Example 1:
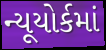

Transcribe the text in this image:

ન્યૂયોર્કમાં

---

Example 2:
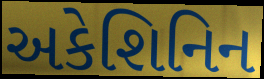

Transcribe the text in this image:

અકેશિનિન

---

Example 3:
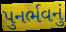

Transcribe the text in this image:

પુનર્ભવનું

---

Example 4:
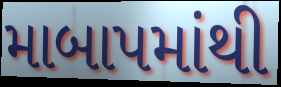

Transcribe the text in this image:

માબાપમાંથી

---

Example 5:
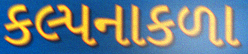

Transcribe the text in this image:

કલ્પનાકળા